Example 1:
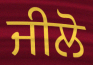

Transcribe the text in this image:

ਜੀਲੋ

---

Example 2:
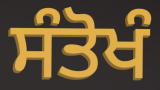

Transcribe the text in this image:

ਸੰਤੋਖੰ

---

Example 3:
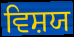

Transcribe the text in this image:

ਵਿਸ਼ਯ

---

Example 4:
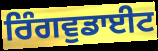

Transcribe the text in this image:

ਰਿੰਗਵੁਡਾਈਟ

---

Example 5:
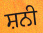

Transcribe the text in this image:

ਸ਼ਨੀ